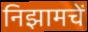
निझामचें